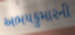
અભયકુમારની